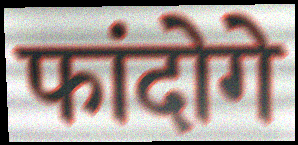
फांदोगे